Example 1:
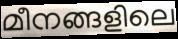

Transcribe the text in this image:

മീനങ്ങളിലെ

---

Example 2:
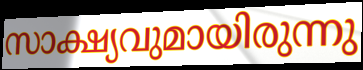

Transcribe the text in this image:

സാക്ഷ്യവുമായിരുന്നു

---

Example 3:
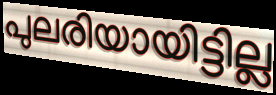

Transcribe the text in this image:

പുലരിയായിട്ടില്ല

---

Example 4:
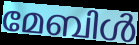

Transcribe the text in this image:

മേബിൾ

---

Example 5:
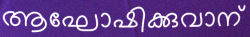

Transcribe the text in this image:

ആഘോഷിക്കുവാന്